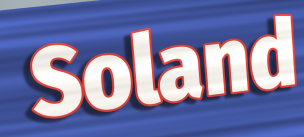
Soland